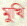
মুখি